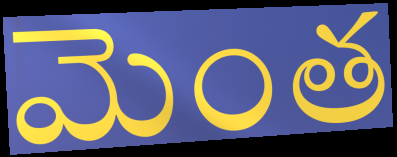
మెంత